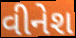
વીનેશ